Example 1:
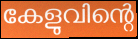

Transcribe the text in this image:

കേളുവിന്റെ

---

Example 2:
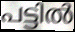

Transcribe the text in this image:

പട്ടിൽ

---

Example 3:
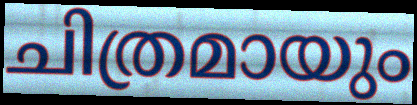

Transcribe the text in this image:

ചിത്രമായും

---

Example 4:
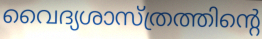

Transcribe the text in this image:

വൈദ്യശാസ്ത്രത്തിന്റെ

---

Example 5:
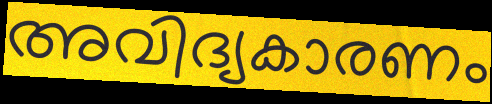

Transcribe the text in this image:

അവിദ്യകാരണം